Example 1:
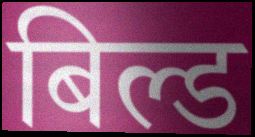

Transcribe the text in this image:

बिल्ड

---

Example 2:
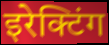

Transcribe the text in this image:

इरेक्टिंग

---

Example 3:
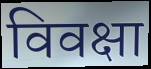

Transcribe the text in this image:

विवक्षा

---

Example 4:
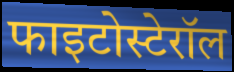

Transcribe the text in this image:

फाइटोस्टेरॉल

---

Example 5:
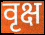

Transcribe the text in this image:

वृक्ष